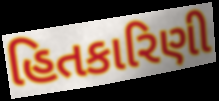
હિતકારિણી